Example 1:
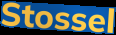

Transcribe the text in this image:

Stossel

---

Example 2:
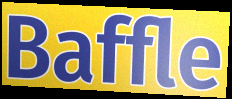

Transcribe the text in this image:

Baffle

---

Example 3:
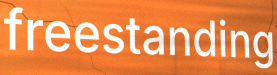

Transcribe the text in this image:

freestanding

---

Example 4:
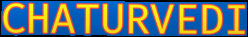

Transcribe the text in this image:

CHATURVEDI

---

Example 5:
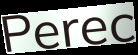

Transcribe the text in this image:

Perec